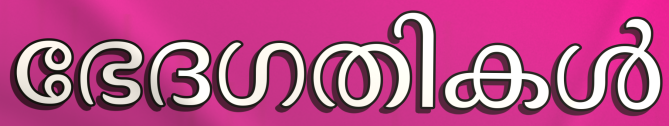
ഭേദഗതികൾ